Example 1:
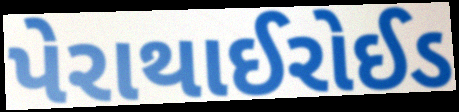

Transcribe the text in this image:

પેરાથાઈરોઈડ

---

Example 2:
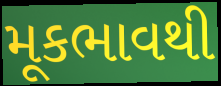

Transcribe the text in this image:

મૂકભાવથી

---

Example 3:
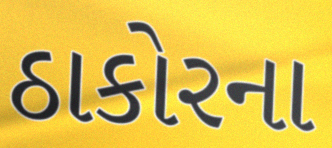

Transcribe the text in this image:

ઠાકોરના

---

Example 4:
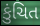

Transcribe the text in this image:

કુંચિત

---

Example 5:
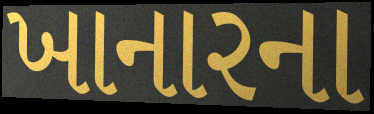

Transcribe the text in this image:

ખાનારના